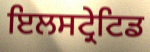
ਇਲਸਟ੍ਰੇਟਿਡ